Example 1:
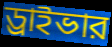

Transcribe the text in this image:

ড্রাইভার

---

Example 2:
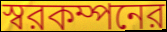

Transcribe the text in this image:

স্বরকম্পনের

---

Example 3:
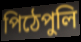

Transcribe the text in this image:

পিঠেপুলি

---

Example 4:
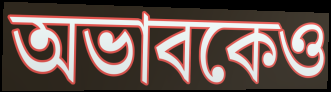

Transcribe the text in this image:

অভাবকেও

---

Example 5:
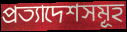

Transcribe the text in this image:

প্রত্যাদেশসমূহ